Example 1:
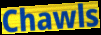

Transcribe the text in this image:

Chawls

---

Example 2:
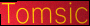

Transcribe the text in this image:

Tomsic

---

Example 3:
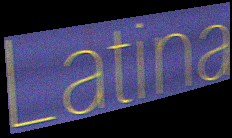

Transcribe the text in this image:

Latina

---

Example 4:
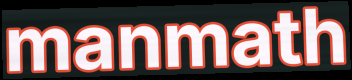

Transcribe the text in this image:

manmath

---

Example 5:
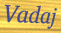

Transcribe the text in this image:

Vadaj